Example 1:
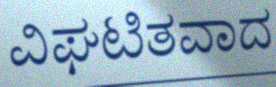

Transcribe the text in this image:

ವಿಘಟಿತವಾದ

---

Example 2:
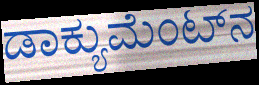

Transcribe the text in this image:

ಡಾಕ್ಯುಮೆಂಟ್‌ನ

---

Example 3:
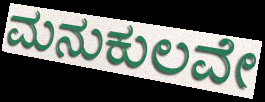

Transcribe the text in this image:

ಮನುಕುಲವೇ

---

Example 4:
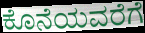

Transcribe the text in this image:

ಕೊನೆಯವರೆಗೆ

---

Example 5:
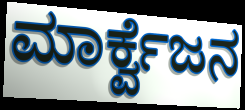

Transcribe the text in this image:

ಮಾರ್ಕ್ವೆಜನ